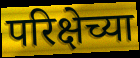
परिक्षेच्या